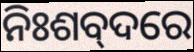
ନିଃଶବ୍‌ଦରେ